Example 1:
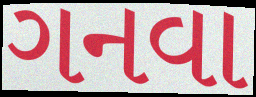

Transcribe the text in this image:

ગનવા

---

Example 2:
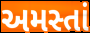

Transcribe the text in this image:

અમસ્તાં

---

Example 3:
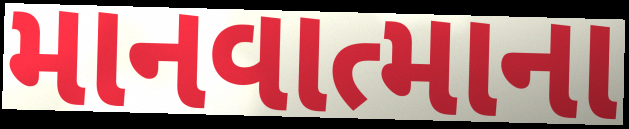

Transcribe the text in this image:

માનવાત્માના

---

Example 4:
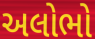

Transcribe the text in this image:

અલોભો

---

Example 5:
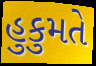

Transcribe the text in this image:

હુકુમતે